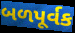
બળપૂર્વક